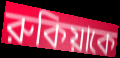
রুকিয়াকে